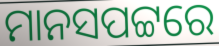
ମାନସପଟ୍ଟରେ